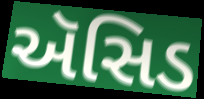
ઍસિડ